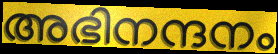
അഭിനന്ദനം